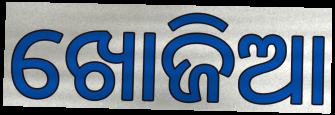
ଖୋଜିଆ